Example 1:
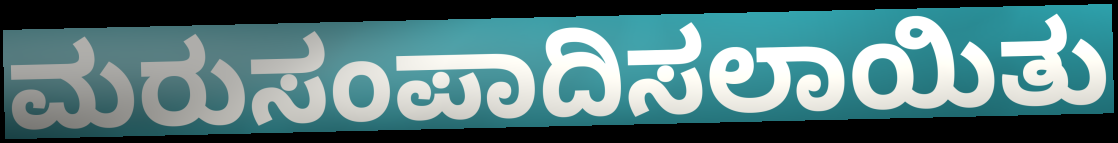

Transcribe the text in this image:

ಮರುಸಂಪಾದಿಸಲಾಯಿತು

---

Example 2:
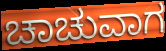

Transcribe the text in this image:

ಚಾಚುವಾಗ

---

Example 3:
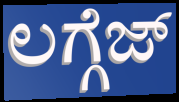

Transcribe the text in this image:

ಲಗ್ಗೆಜ್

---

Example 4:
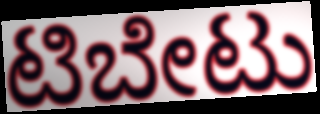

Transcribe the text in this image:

ಟಿಬೇಟು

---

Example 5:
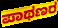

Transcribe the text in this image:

ಪಾಥಣರ